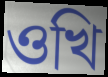
ওখি